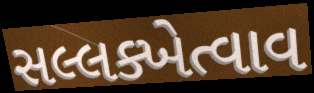
સલ્લક્ખેત્વાવ